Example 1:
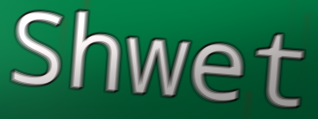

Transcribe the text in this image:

Shwet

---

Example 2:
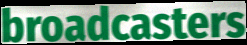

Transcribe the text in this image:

broadcasters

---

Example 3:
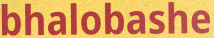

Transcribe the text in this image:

bhalobashe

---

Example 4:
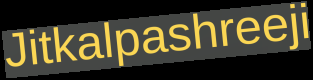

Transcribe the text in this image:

Jitkalpashreeji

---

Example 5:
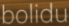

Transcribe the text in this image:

bolidu